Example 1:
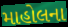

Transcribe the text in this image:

માહોલના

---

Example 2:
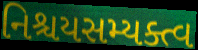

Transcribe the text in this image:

નિશ્ચયસમ્યક્ત્વ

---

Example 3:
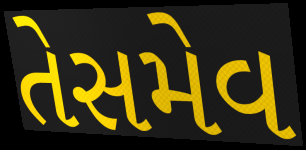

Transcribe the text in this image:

તેસમેવ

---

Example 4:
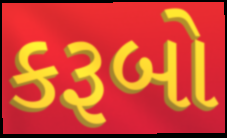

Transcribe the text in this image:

કરૂબો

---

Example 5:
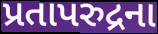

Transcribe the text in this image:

પ્રતાપરુદ્રના